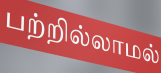
பற்றில்லாமல்